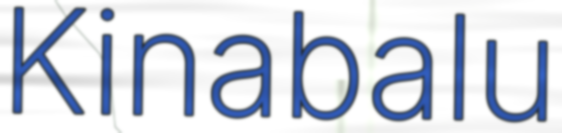
Kinabalu